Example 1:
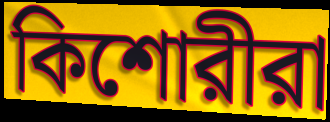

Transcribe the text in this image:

কিশোরীরা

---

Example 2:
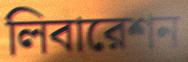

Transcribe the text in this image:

লিবারেশন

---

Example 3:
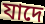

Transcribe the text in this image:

যাদে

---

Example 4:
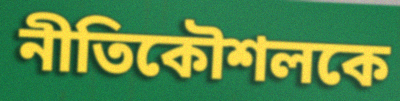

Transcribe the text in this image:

নীতিকৌশলকে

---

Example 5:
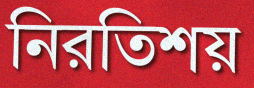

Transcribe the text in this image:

নিরতিশয়